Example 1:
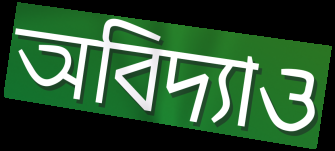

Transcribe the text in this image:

অবিদ্যাও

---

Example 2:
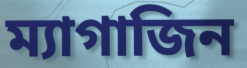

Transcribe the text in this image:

ম্যাগাজিন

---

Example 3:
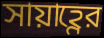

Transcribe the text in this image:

সায়াহ্ণের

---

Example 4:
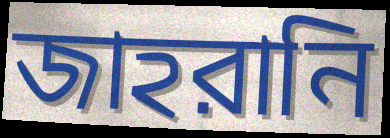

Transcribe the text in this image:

জাহরানি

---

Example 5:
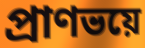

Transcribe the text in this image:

প্রাণভয়ে